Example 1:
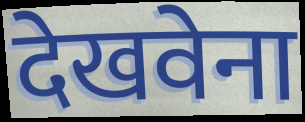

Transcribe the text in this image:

देखवेना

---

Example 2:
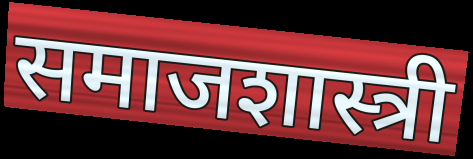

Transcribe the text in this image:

समाजशास्त्री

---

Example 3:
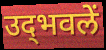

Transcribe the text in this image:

उद्‍भवलें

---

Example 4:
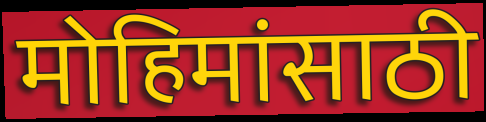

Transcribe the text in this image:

मोहिमांसाठी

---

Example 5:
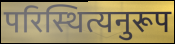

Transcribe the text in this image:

परिस्थित्यनुरूप